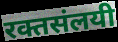
रक्तसंलयी